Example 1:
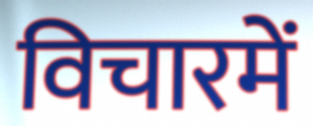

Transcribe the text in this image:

विचारमें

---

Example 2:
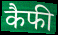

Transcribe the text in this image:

कैफी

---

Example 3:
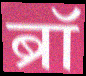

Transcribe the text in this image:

ब्रॉ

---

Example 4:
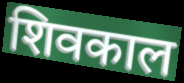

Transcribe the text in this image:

शिवकाल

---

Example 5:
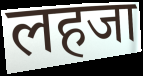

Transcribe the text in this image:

लहजा